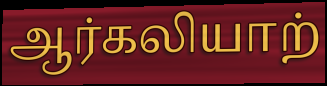
ஆர்கலியாற்